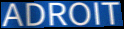
ADROIT